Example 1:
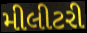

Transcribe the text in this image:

મીલીટરી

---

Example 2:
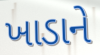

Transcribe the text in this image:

ખાડાને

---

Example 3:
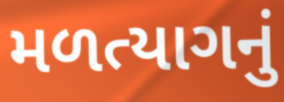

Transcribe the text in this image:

મળત્યાગનું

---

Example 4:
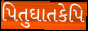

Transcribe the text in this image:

પિતુઘાતકેપિ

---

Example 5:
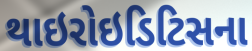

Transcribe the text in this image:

થાઇરોઇડિટિસના